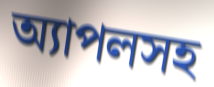
অ্যাপলসহ